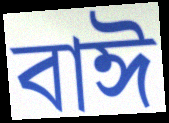
বাঈ